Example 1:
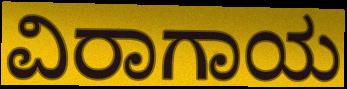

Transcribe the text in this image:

ವಿರಾಗಾಯ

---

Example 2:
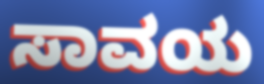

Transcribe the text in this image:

ಸಾವಯ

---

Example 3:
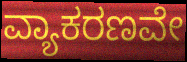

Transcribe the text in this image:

ವ್ಯಾಕರಣವೇ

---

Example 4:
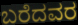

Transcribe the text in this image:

ಬರೆದವರ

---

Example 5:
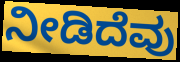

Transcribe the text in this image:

ನೀಡಿದೆವು